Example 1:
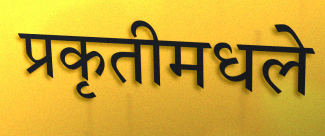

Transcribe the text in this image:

प्रकृतीमधले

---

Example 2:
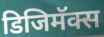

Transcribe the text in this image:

डिजिमॅक्स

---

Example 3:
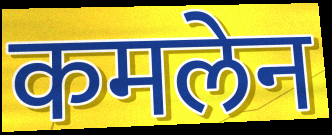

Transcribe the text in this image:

कमलेन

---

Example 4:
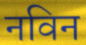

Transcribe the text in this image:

नविन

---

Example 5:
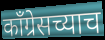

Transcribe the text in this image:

काँग्रेसच्याच